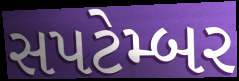
સપટેમ્બર